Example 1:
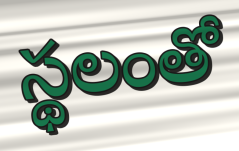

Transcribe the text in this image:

స్థలంతో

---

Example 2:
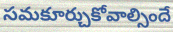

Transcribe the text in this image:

సమకూర్చుకోవాల్సిందే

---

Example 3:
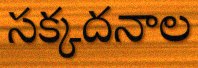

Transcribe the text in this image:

సక్కదనాల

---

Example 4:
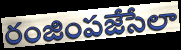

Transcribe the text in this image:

రంజింపజేసేలా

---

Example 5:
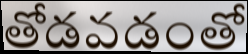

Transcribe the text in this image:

తోడవడంతో